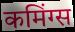
कमिंग्स